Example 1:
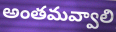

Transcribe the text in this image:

అంతమవ్వాలి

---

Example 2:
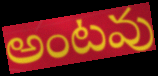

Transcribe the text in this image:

అంటవు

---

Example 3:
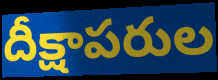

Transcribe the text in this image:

దీక్షాపరుల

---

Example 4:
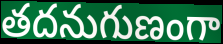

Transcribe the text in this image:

తదనుగుణంగా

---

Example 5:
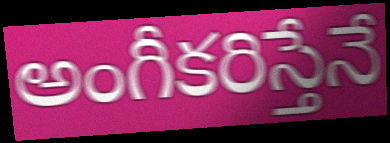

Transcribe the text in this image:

అంగీకరిస్తేనే